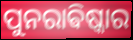
ପୁନରାଵିଷ୍କାର